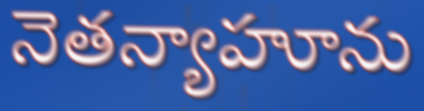
నెతన్యాహూను